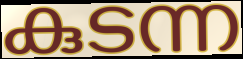
കുടന്ന